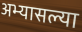
अभ्यासल्या